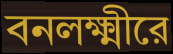
বনলক্ষ্মীরে